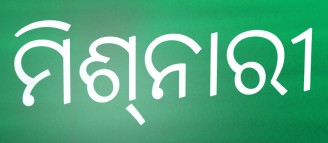
ମିଶ୍‍ନାରୀ